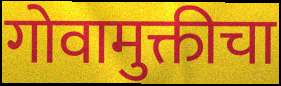
गोवामुक्तीचा